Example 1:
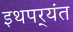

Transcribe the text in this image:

इथपर्यंत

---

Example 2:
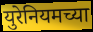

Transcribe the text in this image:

युरेनियमच्या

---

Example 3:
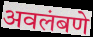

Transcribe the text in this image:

अवलंबणे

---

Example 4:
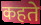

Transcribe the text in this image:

कहते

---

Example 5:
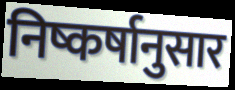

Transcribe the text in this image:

निष्कर्षानुसार